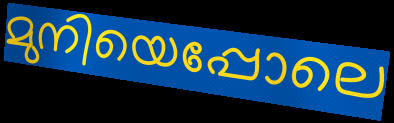
മുനിയെപ്പോലെ